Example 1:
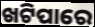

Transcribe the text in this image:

ଖଟିପାରେ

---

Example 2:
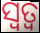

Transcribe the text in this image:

ସ୍ୱତ୍ୱ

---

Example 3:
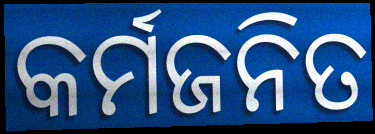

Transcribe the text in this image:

କର୍ମଜନିତ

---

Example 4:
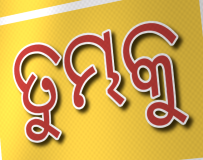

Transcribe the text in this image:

ତୁମ୍ଭକୁ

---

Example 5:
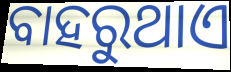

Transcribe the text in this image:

ବାହରୁଥାଏ